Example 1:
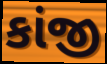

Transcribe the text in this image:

કાંજી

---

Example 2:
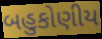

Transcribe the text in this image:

બહુકોણીય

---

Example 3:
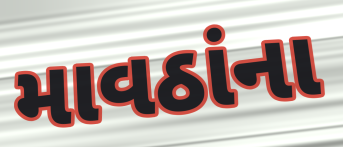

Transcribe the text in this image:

માવઠાંના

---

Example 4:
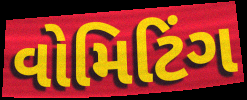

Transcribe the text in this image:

વોમિટિંગ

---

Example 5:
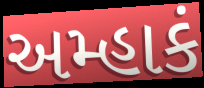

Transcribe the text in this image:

અમ્હાકં